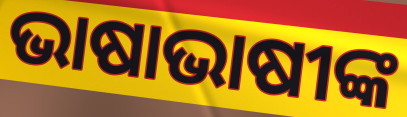
ଭାଷାଭାଷୀଙ୍କ